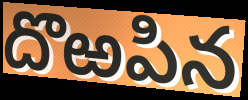
దొఱపిన